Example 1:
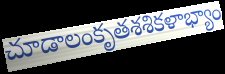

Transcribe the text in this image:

చూడాలంకృతశశికళాభ్యాం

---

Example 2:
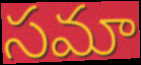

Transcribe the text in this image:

సమా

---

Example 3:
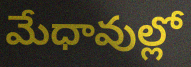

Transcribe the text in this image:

మేధావుల్లో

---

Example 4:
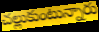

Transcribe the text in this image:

చల్లుకుంటున్నారు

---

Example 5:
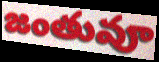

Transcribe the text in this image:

జంతువూ